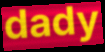
dady